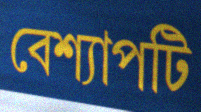
বেশ্যাপটি